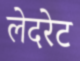
लेदरेट